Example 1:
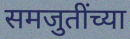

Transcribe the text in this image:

समजुतींच्या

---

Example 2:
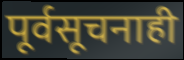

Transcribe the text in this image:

पूर्वसूचनाही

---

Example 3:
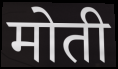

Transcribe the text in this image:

मोती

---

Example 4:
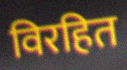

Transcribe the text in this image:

विरहित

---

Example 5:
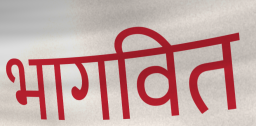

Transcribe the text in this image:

भागवित